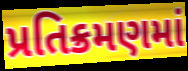
પ્રતિક્રમણમાં